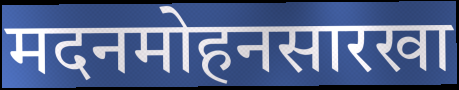
मदनमोहनसारखा